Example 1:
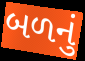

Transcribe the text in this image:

બળનું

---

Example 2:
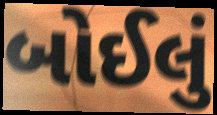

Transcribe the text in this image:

બોઈલું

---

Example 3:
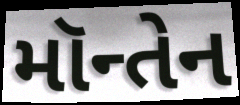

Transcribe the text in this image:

મૉન્તેન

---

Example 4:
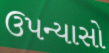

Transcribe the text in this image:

ઉપન્યાસો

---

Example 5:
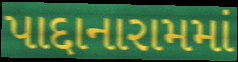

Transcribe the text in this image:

પાદ્દાનારામમાં